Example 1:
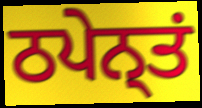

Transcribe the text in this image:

ਠਪੇਨ੍ਤਂ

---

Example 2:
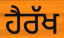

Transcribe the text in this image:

ਹੈਰੱਖ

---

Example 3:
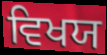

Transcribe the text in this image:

ਵਿਖਯ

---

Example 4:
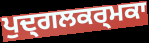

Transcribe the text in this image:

ਪੁਦ੍ਗਲਕਰ੍ਮਕਾ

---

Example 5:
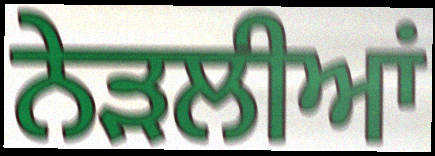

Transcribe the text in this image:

ਨੇੜਲੀਆਂ